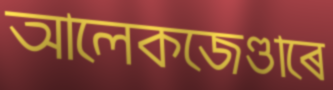
আলেকজেণ্ডাৰে